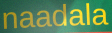
naadala